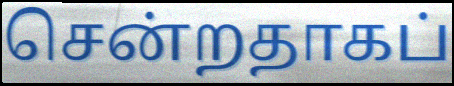
சென்றதாகப்